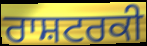
ਰਾਸ਼ਟਰਕੀ